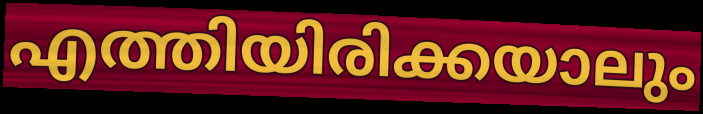
എത്തിയിരിക്കയാലും